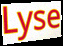
Lyse